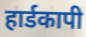
हार्डकापी